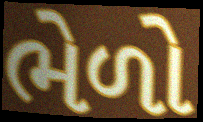
ભેળો